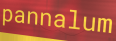
pannalum